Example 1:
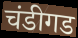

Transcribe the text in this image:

चंडीगड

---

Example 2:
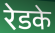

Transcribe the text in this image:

रेडके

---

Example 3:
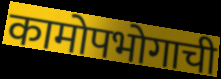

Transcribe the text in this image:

कामोपभोगाची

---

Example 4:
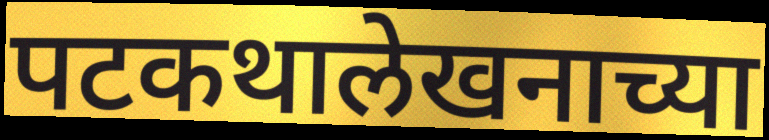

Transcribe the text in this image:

पटकथालेखनाच्या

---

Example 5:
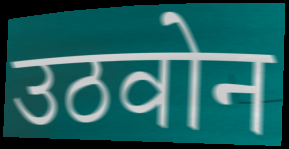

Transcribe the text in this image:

उठवोन